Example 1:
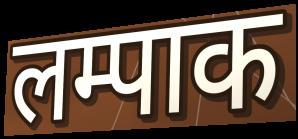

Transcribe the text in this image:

लम्पाक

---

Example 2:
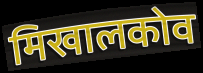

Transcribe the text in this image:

मिखालकोव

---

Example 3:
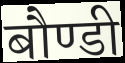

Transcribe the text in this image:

बौण्डी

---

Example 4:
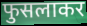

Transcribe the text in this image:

फुसलाकर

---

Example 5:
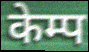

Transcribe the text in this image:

केम्प